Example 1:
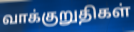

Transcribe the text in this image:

வாக்குறுதிகள்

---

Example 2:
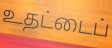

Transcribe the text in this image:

உதட்டைப்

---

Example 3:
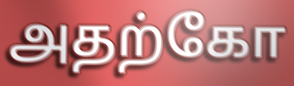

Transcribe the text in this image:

அதற்கோ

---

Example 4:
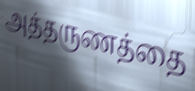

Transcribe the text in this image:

அத்தருணத்தை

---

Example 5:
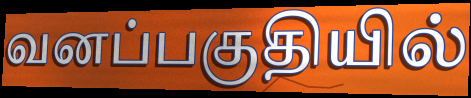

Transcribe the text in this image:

வனப்பகுதியில்